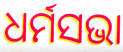
ଧର୍ମସଭା